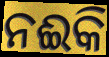
ନଈକି